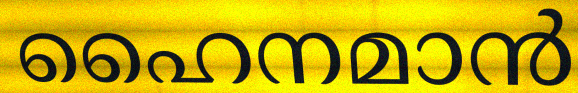
ഹൈനമാൻ